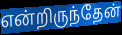
என்றிருந்தேன்